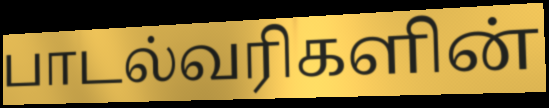
பாடல்வரிகளின்